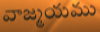
వాజ్మయము